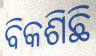
ବିକଶିଛି